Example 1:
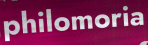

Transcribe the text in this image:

philomoria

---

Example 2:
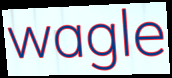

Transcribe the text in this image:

wagle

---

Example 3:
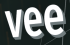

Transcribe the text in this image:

vee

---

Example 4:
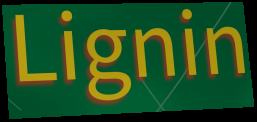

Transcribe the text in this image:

Lignin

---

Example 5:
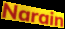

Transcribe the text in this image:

Narain